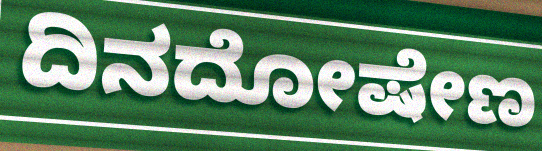
ದಿನದೋಷೇಣ